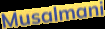
Musalmani